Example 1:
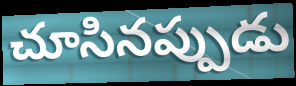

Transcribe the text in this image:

చూసినప్పుడు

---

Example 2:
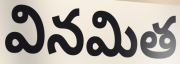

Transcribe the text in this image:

వినమిత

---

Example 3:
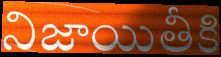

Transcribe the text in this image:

నిజాయితీకి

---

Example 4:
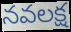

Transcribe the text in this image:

నవలక్ష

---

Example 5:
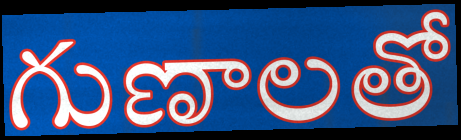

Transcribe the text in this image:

గుణాలతో